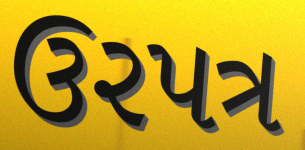
ઉરપત્ર